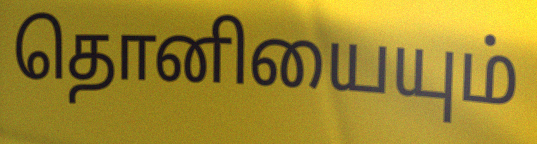
தொனியையும்